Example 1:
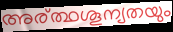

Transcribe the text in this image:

അര്ത്ഥശൂന്യതയും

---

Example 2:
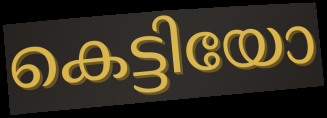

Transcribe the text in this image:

കെട്ടിയോ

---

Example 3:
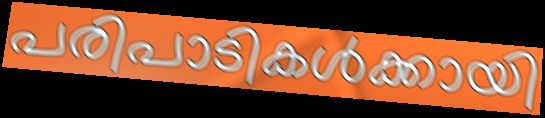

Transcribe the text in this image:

പരിപാടികൾക്കായി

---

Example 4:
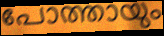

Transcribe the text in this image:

പോത്തായും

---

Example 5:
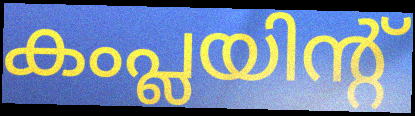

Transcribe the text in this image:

കംപ്ലയിന്റ്